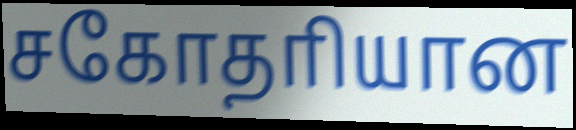
சகோதரியான